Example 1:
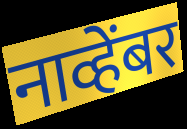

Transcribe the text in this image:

नाव्हेंबर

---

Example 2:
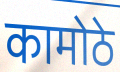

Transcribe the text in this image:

कामोठे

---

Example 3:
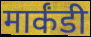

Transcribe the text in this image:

मार्कंडी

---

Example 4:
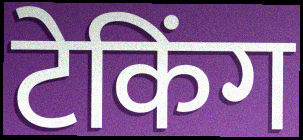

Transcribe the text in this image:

टेकिंग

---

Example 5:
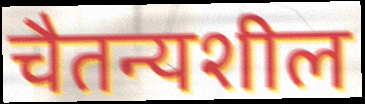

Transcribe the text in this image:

चैतन्यशील